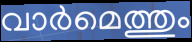
വാർമെത്തും